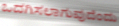
ಒದಗಿಸಲಾಗುವುದೆಂದು